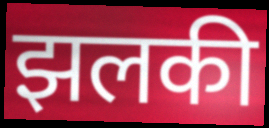
झलकी